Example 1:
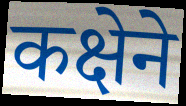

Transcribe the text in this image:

कक्षेने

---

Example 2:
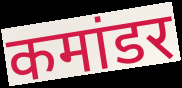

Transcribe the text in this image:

कमांडर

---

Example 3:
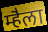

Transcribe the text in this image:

म्हैला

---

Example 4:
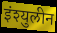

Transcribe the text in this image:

इंश्युलीन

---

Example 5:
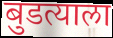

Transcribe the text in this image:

बुडत्याला